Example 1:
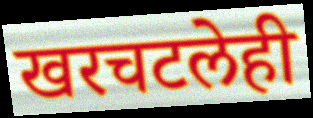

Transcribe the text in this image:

खरचटलेही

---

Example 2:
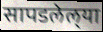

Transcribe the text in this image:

सापडलेल्या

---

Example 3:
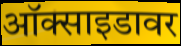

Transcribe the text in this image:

ऑक्साइडावर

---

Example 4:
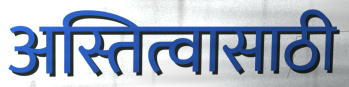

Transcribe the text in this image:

अस्तित्वासाठी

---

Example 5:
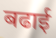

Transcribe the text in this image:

बढाई